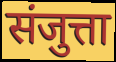
संजुत्ता